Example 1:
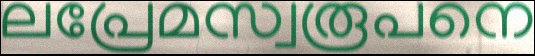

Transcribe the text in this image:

ലപ്രേമസ്വരൂപനെ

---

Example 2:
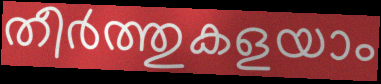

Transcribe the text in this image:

തീർത്തുകളയാം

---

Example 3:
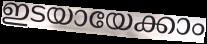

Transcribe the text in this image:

ഇടയായേക്കാം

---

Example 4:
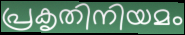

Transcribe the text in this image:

പ്രകൃതിനിയമം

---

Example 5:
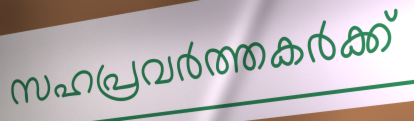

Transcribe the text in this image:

സഹപ്രവർത്തകർക്ക്